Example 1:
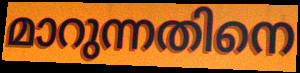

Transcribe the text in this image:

മാറുന്നതിനെ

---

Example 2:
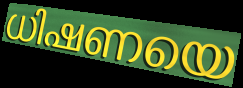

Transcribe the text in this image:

ധിഷണയെ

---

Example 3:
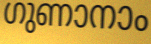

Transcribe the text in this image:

ഗുണാനാം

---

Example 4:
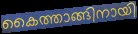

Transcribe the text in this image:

കൈത്താങ്ങിനായി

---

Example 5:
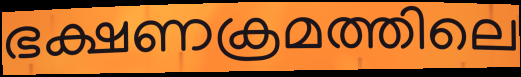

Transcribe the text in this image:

ഭക്ഷണക്രമത്തിലെ